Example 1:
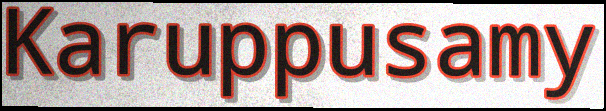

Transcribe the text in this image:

Karuppusamy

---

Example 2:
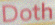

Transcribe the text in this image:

Doth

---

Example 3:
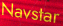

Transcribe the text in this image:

Navstar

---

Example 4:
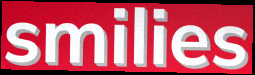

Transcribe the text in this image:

smilies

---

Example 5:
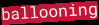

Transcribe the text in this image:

ballooning